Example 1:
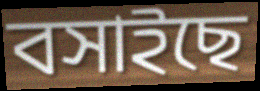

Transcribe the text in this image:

বসাইছে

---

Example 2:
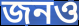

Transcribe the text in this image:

জনও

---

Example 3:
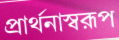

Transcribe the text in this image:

প্রার্থনাস্বরূপ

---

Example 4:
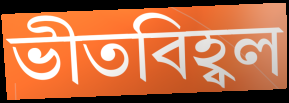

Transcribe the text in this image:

ভীতবিহ্বল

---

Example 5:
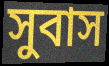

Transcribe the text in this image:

সুবাস